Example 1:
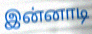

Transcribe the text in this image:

இன்னாடி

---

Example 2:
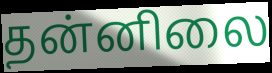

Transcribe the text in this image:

தன்னிலை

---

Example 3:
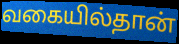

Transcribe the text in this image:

வகையில்தான்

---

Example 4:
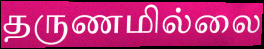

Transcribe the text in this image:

தருணமில்லை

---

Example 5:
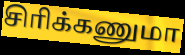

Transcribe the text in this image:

சிரிக்கணுமா